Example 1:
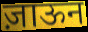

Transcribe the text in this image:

ज़ाऊन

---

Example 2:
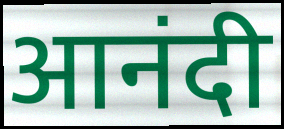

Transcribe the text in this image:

आनंदी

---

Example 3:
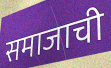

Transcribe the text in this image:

समाजाची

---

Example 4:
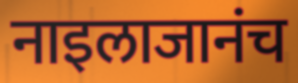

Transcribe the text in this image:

नाइलाजानंच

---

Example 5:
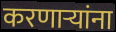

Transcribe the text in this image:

करणाऱ्यांना